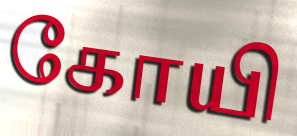
கோயி